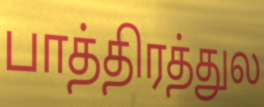
பாத்திரத்துல